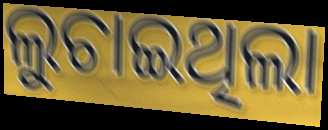
ଲୁଚାଇଥିଲା